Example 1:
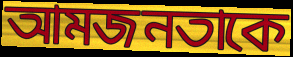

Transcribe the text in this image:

আমজনতাকে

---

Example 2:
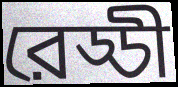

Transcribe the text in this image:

রেড্ডী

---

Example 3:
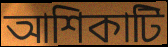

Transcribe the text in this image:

আশিকাটি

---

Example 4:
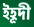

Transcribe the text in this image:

ইহূদী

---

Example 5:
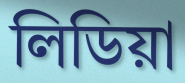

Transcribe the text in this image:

লিডিয়া